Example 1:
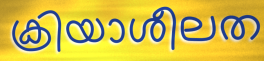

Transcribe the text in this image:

ക്രിയാശീലത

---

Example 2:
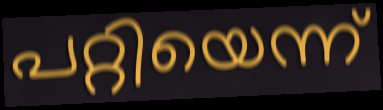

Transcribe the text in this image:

പറ്റിയെന്ന്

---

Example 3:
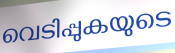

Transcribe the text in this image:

വെടിപ്പുകയുടെ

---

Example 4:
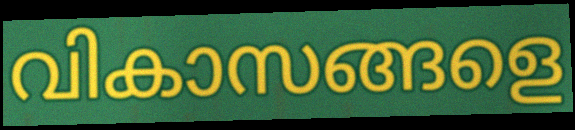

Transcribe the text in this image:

വികാസങ്ങളെ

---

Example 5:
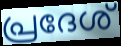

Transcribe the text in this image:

പ്രദേശ്